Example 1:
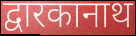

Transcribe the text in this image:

द्वारकानाथ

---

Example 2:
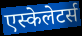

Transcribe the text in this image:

एस्केलेटर्स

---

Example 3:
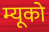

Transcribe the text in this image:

म्यूको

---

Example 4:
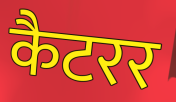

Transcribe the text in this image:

कैटरर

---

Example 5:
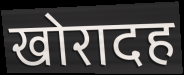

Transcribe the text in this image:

खोरादह